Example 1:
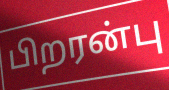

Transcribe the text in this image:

பிறரன்பு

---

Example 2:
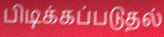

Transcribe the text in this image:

பிடிக்கப்படுதல்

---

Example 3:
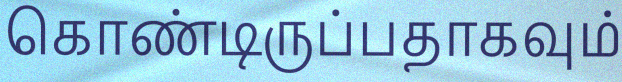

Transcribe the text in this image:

கொண்டிருப்பதாகவும்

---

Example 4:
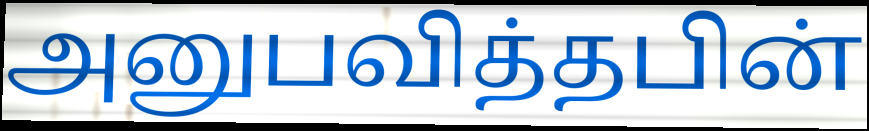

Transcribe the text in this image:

அனுபவித்தபின்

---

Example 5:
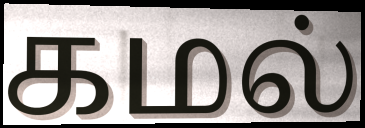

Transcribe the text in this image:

கமல்